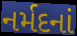
નર્મદનાં